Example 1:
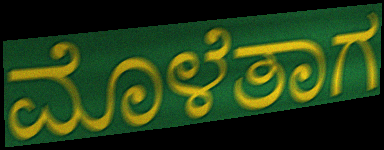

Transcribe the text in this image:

ಮೊಳೆತಾಗ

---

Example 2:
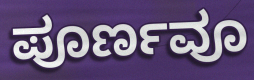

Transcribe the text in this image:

ಪೂರ್ಣವೂ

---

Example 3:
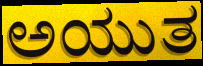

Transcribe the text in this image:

ಅಯುತ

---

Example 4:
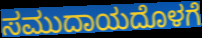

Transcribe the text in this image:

ಸಮುದಾಯದೊಳಗೆ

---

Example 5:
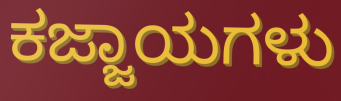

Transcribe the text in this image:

ಕಜ್ಜಾಯಗಳು